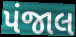
પંજાલ